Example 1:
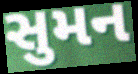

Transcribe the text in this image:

સુમન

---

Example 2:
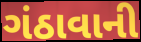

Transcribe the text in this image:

ગંઠાવાની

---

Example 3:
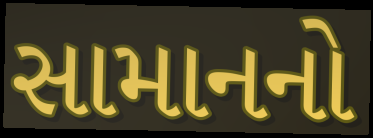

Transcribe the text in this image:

સામાનનો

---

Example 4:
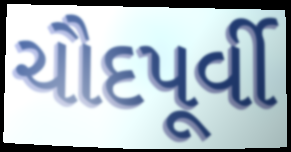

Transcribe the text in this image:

ચૌદપૂર્વી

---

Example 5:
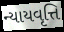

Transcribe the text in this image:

ન્યાયવૃત્તિ